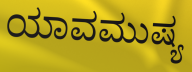
ಯಾವಮುಷ್ಯ